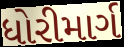
ધોરીમાર્ગ